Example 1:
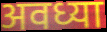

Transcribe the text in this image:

अवध्या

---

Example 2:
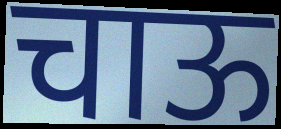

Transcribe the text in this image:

चाऊ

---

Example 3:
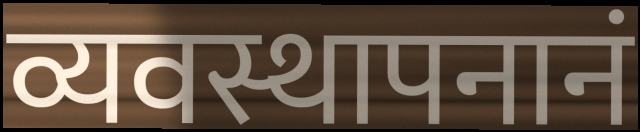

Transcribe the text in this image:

व्यवस्थापनानं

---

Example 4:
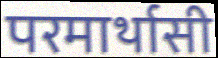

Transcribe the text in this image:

परमार्थासी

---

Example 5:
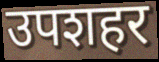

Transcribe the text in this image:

उपशहर